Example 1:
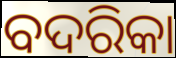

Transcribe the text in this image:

ବଦରିକା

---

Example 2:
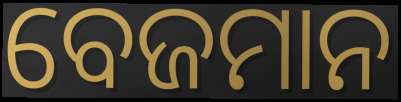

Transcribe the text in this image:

ବେଜମାନ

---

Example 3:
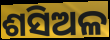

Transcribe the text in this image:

ଶସିଅଳ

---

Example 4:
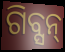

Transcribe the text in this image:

ଗିବ୍ସନ୍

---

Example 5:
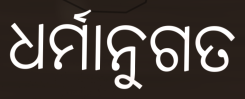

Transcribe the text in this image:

ଧର୍ମାନୁଗତ